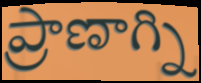
ప్రాణాగ్ని